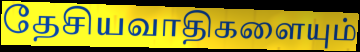
தேசியவாதிகளையும்